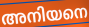
അനിയനെ